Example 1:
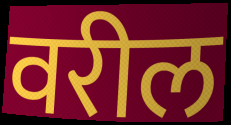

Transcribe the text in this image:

वरील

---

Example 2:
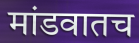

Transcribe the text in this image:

मांडवातच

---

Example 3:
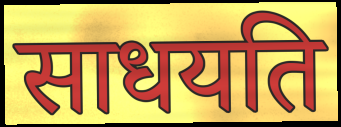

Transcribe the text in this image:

साधयति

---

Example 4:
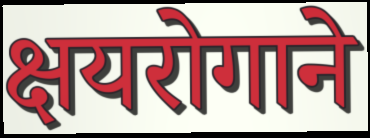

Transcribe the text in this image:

क्षयरोगाने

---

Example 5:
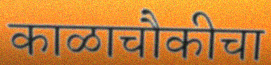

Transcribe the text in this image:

काळाचौकीचा